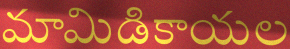
మామిడికాయల